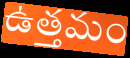
ఉత్తమం